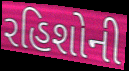
રહિશોની